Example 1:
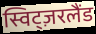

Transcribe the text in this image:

स्विट्ज़रलैंड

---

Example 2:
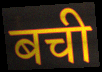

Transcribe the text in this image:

बची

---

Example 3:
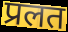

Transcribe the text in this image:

प्रलत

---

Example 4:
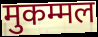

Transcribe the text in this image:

मुकम्मल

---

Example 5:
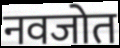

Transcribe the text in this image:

नवजोत